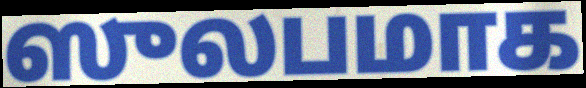
ஸுலபமாக